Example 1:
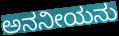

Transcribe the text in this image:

ಅನನೀಯನು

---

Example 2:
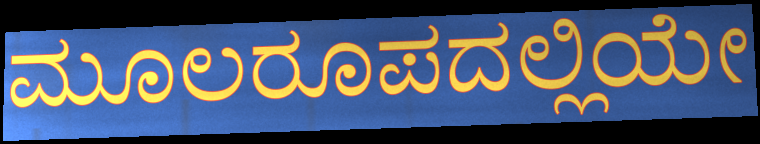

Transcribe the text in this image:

ಮೂಲರೂಪದಲ್ಲಿಯೇ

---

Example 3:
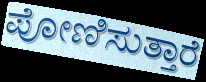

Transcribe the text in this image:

ಪೋಣಿಸುತ್ತಾರೆ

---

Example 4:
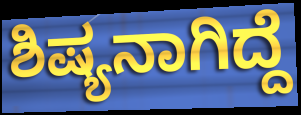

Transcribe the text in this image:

ಶಿಷ್ಯನಾಗಿದ್ದೆ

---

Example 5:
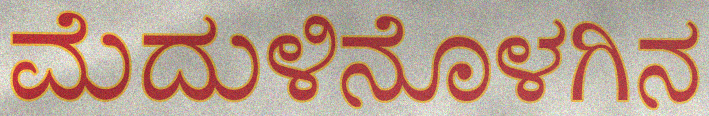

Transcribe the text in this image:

ಮೆದುಳಿನೊಳಗಿನ